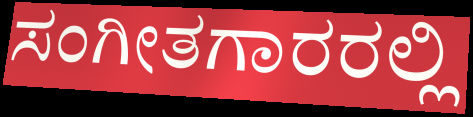
ಸಂಗೀತಗಾರರಲ್ಲಿ